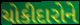
ચોકીદારોને